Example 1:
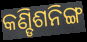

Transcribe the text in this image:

କଣ୍ଡିଶନିଙ୍ଗ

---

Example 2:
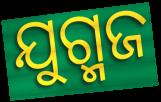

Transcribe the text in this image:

ଯୁଗ୍ମଜ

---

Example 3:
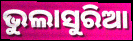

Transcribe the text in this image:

ଭୁଲାସୁରିଆ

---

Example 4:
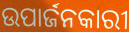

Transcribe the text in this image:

ଉପାର୍ଜନକାରୀ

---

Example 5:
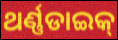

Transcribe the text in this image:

ଥର୍ଣ୍ଣଡାଇକ୍